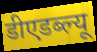
डीएडब्ल्यू